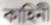
কাহিনী